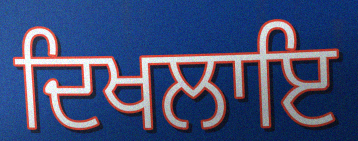
ਦਿਖਲਾਇ